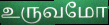
உருவமோ